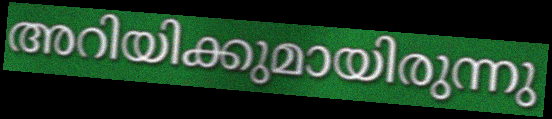
അറിയിക്കുമായിരുന്നു